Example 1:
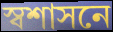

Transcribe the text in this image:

স্বশাসনে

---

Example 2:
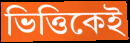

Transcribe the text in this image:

ভিত্তিকেই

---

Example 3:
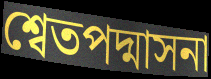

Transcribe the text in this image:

শ্বেতপদ্মাসনা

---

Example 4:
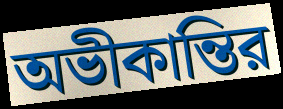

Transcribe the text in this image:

অভীকান্তির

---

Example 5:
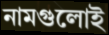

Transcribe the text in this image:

নামগুলোই